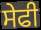
ਸੇਫੀ